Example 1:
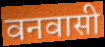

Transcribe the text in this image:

वनवासी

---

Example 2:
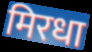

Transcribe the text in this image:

मिरधा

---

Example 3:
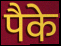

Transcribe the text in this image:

पैके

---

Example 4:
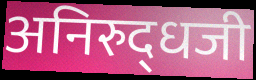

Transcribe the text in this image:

अनिरुद्धजी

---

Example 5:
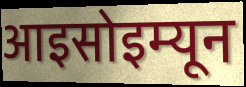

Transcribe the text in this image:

आइसोइम्यून